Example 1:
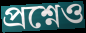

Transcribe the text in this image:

প্রশ্নেও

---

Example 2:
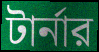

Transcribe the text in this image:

টার্নার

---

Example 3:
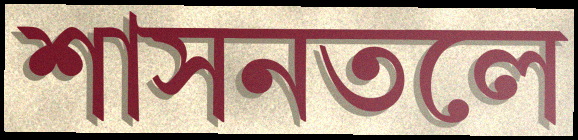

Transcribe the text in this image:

শাসনতলে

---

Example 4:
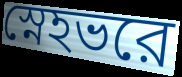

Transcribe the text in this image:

স্নেহভরে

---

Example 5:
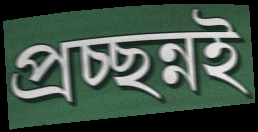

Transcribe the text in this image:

প্রচ্ছন্নই